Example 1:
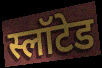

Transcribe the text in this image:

स्लॉटेड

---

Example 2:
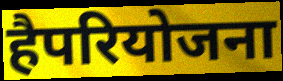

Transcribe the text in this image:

हैपरियोजना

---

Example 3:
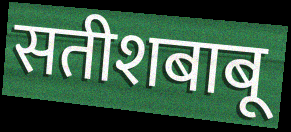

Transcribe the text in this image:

सतीशबाबू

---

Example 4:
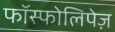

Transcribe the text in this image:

फॉस्फोलिपेज़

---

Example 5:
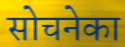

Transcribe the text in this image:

सोचनेका